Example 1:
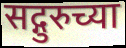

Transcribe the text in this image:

सद्गुरुच्या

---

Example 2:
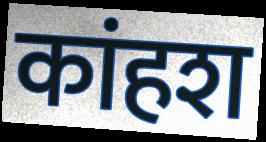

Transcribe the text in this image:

कांहश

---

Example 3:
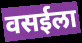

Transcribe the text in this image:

वसईला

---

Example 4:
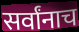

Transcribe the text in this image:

सर्वांनाच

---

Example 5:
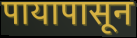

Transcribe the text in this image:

पायापासून